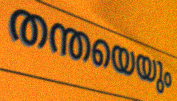
തന്തയെയും